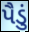
પૈડું